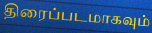
திரைப்படமாகவும்